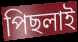
পিছলাই